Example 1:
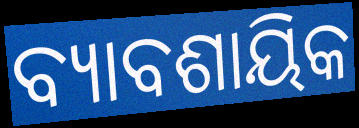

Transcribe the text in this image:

ବ୍ୟାବଶାୟିକ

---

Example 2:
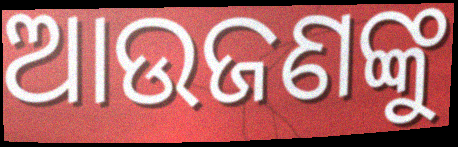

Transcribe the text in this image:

ଆଉଜଣଙ୍କୁ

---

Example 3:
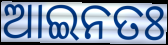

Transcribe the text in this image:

ଆଇନତଃ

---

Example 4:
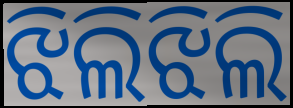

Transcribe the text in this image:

ଝିଲିଝିଲି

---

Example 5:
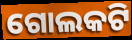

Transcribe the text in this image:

ଗୋଲକଟି